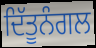
ਦਿੱਤੂਨੰਗਲ